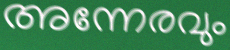
അന്നേരവും